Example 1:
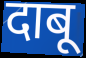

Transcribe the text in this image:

दाबू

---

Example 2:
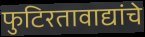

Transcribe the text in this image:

फुटिरतावाद्यांचे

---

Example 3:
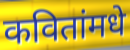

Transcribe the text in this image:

कवितांमधे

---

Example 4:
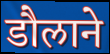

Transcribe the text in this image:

डौलाने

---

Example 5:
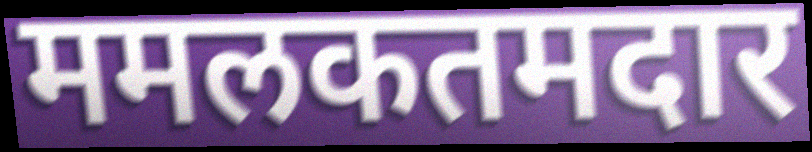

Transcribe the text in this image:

ममलकतमदार